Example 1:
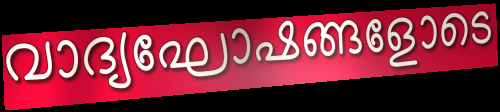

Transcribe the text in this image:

വാദ്യഘോഷങ്ങളോടെ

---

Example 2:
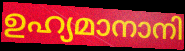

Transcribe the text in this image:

ഉഹ്യമാനാനി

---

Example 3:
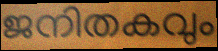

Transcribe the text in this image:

ജനിതകവും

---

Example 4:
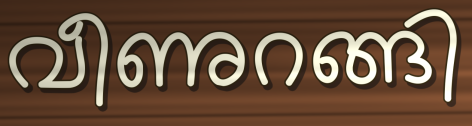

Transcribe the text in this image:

വീണുറങ്ങി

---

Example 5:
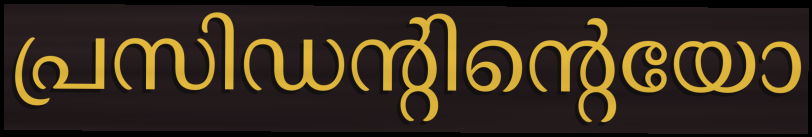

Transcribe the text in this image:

പ്രസിഡന്റിന്റെയോ